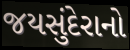
જયસુંદેરાનો